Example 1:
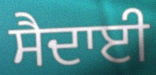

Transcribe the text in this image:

ਸੈਦਾਈ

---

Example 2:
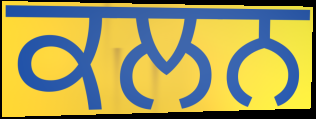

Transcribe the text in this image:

ਕਲਨ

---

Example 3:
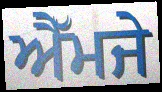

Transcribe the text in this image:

ਐੱਮਜੇ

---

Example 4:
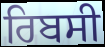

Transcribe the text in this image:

ਰਿਬਸੀ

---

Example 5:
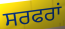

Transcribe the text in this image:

ਸਰਫਰਾਂ